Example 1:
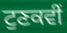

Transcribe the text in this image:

ਟੁਣਕਵੀਂ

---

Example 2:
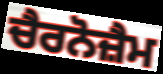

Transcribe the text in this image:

ਚੈਰਨੋਜ਼ੈਮ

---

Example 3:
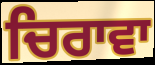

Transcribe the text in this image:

ਚਿਰਾਵਾ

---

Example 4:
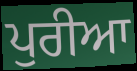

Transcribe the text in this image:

ਪੁਰੀਆ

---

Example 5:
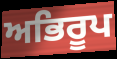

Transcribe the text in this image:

ਅਭਿਰੂਪ